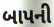
બાપની